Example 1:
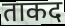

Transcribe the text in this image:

ताकद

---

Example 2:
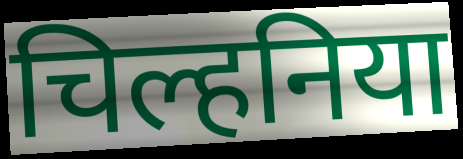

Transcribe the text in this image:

चिल्हनिया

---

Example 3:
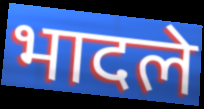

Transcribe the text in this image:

भादले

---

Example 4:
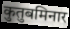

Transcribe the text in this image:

कुतुबमिनार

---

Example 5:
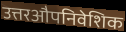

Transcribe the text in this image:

उत्तरऔपनिवेशिक